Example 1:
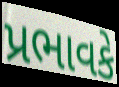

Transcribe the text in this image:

પ્રભાવકે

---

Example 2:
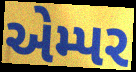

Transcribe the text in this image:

એમ્પર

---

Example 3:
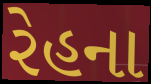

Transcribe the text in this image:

રેહના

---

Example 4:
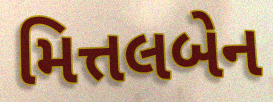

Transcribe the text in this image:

મિત્તલબેન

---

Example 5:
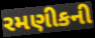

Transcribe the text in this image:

રમણીકની